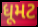
ધૂમટ